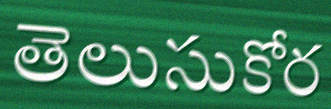
తెలుసుకోర